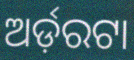
ଅର୍ଡ଼ରଟା